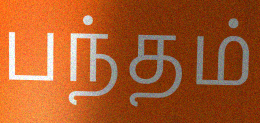
பந்தம்